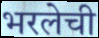
भरलेची